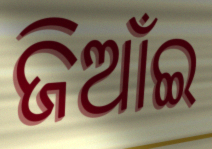
ଜିଆଁଇ